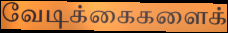
வேடிக்கைகளைக்